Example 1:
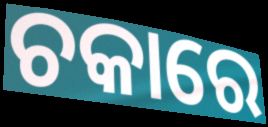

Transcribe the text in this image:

ଚକାରେ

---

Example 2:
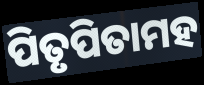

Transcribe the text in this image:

ପିତୃପିତାମହ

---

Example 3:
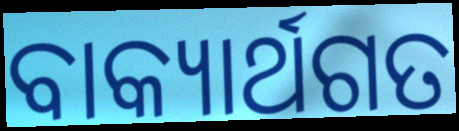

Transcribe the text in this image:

ବାକ୍ୟାର୍ଥଗତ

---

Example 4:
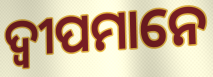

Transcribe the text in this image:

ଦ୍ୱୀପମାନେ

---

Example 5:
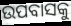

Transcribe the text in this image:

ଉପବାସକୁ